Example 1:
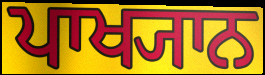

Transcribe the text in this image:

ਪਾਖ੍ਯਾਨ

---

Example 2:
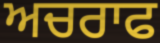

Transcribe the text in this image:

ਅਚਰਾਫ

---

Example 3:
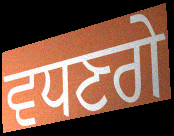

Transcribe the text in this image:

ਵਧਣਗੇ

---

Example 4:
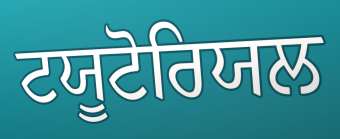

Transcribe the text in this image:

ਟਯੂਟੋਰਿਯਲ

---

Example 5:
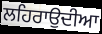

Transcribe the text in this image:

ਲਹਿਰਾਉਦੀਆ